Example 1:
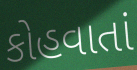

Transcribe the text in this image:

કોહવાતાં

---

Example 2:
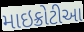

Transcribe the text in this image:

માઇક્રોટીઆ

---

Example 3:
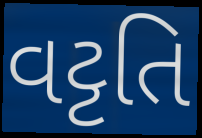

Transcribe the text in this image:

વટ્ટતિ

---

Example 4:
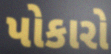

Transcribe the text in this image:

પોકારો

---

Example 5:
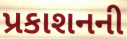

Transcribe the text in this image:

પ્રકાશનની